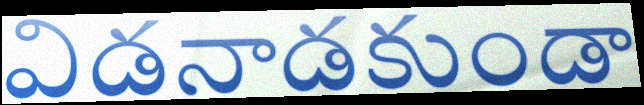
విడనాడకుండా